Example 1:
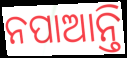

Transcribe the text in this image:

ନପାଆନ୍ତି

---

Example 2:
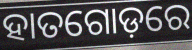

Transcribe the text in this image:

ହାତଗୋଡ଼ରେ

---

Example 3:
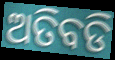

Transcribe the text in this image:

ଅତିବଡି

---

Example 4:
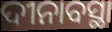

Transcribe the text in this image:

ଦୀନାବସ୍ଥା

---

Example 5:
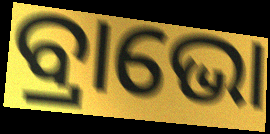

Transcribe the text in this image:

ବ୍ରାଭୋ